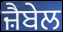
ਜ਼ੈਬੇਲ